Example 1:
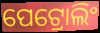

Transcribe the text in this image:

ପେଟ୍ରୋଲିଂ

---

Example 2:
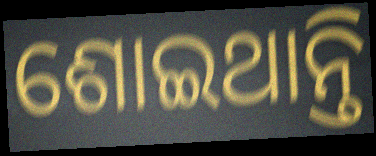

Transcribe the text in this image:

ଶୋଇଥାନ୍ତି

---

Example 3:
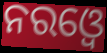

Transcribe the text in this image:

ନରଓ୍ୱେ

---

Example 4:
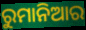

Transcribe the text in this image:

ରୁମାନିଆର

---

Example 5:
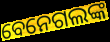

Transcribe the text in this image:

ବେନେଗଲଙ୍କ